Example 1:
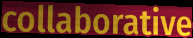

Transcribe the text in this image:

collaborative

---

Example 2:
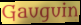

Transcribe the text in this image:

Gauguin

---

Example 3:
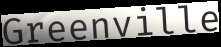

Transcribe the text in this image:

Greenville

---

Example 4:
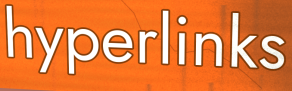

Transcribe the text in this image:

hyperlinks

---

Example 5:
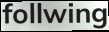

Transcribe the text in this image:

follwing